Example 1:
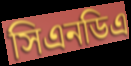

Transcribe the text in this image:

সিএনডিএ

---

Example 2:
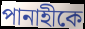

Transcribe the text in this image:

পানাহীকে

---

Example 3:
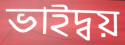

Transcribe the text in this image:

ভাইদ্বয়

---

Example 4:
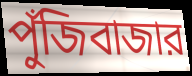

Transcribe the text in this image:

পুঁজিবাজার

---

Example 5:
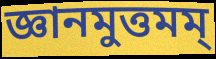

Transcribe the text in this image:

জ্ঞানমুত্তমম্